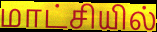
மாட்சியில்